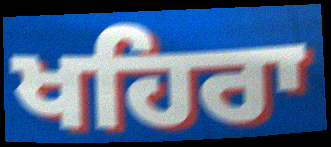
ਖਹਿਰਾ